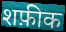
शफ़ीक